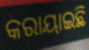
କରାୟାଇଛି